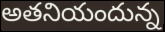
అతనియందున్న